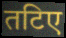
तटिए